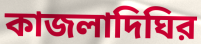
কাজলাদিঘির